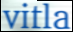
vitla